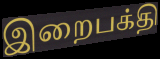
இறைபக்தி